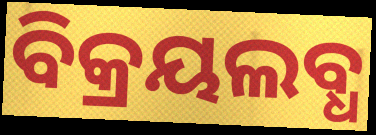
ବିକ୍ରୟଲବ୍ଧ